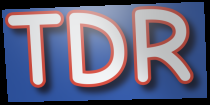
TDR